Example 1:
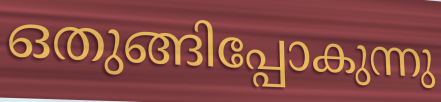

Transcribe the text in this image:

ഒതുങ്ങിപ്പോകുന്നു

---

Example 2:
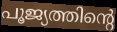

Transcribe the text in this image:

പൂജ്യത്തിന്റെ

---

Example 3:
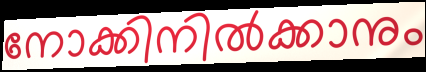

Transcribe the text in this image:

നോക്കിനിൽക്കാനും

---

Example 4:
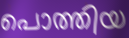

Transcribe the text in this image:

പൊത്തിയ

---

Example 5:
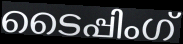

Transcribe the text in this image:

ടൈപ്പിംഗ്